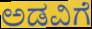
ಅಡವಿಗೆ